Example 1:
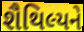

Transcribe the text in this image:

શૈથિલ્યને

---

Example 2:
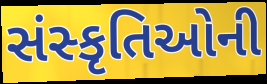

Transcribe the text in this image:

સંસ્કૃતિઓની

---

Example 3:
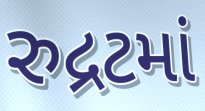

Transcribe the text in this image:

રુદ્રટમાં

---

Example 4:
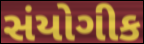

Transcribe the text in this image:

સંયોગીક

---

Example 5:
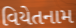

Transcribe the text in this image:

વિયેતનામ